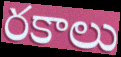
రకాలు